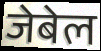
जेबेल